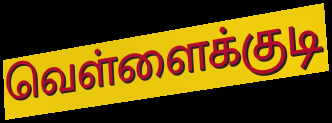
வெள்ளைக்குடி